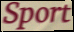
Sport